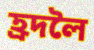
হ্ৰদলৈ